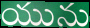
యును